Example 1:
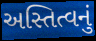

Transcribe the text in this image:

અસ્તિત્વનું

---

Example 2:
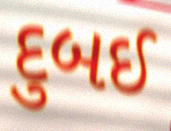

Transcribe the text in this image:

દુબઈ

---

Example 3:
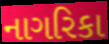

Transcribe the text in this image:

નાગરિકા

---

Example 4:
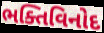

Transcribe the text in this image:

ભક્તિવિનોદ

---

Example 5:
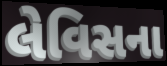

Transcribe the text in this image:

લેવિસના